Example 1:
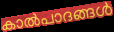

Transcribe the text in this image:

കാൽപാദങ്ങൾ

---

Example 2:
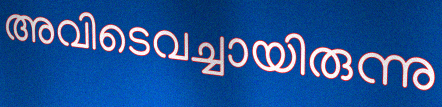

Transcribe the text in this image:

അവിടെവച്ചായിരുന്നു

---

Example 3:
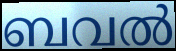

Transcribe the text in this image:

ബവൽ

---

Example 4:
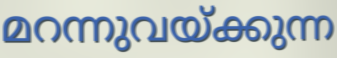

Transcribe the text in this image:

മറന്നുവയ്ക്കുന്ന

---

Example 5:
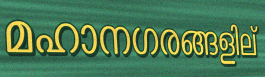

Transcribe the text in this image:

മഹാനഗരങ്ങളില്